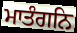
ਮਾਤੰਗਨਿ